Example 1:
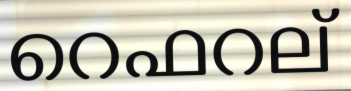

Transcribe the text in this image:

റെഫറല്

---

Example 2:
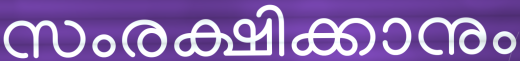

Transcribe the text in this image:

സംരക്ഷിക്കാനും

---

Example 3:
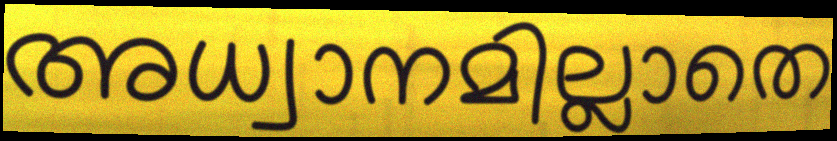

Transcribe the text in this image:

അധ്വാനമില്ലാതെ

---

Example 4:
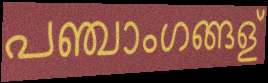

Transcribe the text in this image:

പഞ്ചാംഗങ്ങള്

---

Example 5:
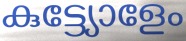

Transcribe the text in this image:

കുട്ട്യോളേം